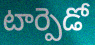
టార్పెడో